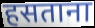
हसताना